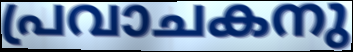
പ്രവാചകനു